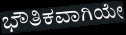
ಭೌತಿಕವಾಗಿಯೇ